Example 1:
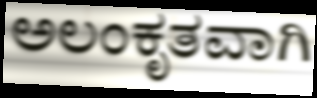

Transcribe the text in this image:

ಅಲಂಕೃತವಾಗಿ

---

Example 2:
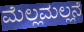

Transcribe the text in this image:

ಮೆಲ್ಲಮಲ್ಲನೆ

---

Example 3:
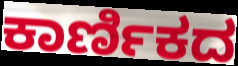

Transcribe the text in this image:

ಕಾರ್ಣಿಕದ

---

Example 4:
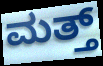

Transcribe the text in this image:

ಮತ್ತ್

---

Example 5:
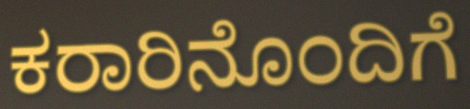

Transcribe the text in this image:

ಕರಾರಿನೊಂದಿಗೆ